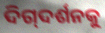
ଦିଗ୍‌ଦର୍ଶନକୁ